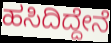
ಹಸಿದಿದ್ದೇನೆ